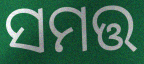
ସମତ୍ତ